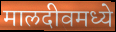
मालदीवमध्ये